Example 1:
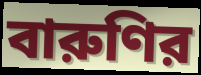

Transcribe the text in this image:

বারুণির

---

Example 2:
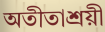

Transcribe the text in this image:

অতীতাশ্রয়ী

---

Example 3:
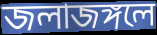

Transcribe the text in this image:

জলাজঙ্গলে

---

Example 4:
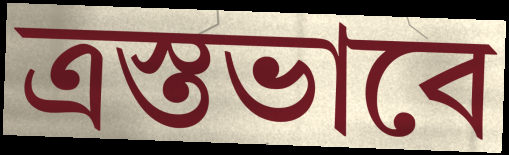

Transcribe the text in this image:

ত্রস্তভাবে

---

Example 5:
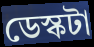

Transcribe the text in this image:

ডেস্কটা